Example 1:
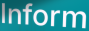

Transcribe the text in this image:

Inform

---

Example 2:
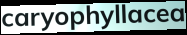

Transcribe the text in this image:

caryophyllacea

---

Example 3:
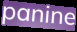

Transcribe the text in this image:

panine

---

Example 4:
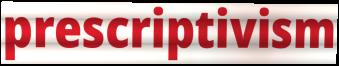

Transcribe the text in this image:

prescriptivism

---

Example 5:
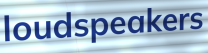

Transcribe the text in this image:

loudspeakers